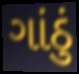
ગાંઠું